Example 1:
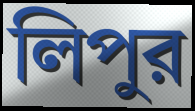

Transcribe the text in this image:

লিপুর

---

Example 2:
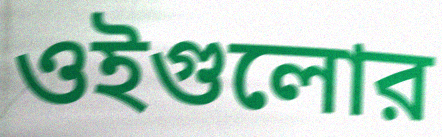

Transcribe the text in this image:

ওইগুলোর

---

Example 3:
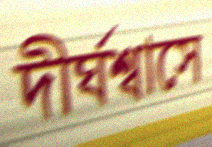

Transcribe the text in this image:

দীর্ঘশ্বাসে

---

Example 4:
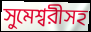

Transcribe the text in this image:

সুমেশ্বরীসহ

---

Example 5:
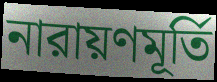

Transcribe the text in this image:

নারায়ণমূর্তি